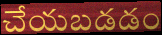
చేయబడడం